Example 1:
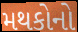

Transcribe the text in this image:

મથકોનો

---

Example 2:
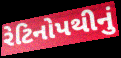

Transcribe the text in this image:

રેટિનોપથીનું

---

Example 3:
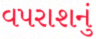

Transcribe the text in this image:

વપરાશનું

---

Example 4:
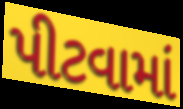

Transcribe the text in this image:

પીટવામાં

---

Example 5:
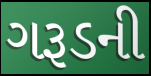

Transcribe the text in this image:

ગરૂડની